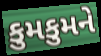
કુમકુમને